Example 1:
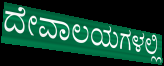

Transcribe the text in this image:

ದೇವಾಲಯಗಳಲ್ಲಿ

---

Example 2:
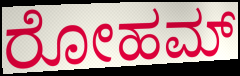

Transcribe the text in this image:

ರೋಹಮ್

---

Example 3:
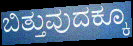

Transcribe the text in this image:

ಬಿತ್ತುವುದಕ್ಕೂ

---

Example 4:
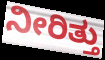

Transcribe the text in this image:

ನೀರಿತ್ತು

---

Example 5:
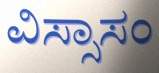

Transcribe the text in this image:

ವಿಸ್ಸಾಸಂ